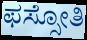
ಫಸ್ಸೋತಿ